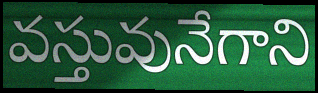
వస్తువునేగాని